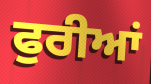
ਫੁਰੀਆਂ